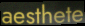
aesthete